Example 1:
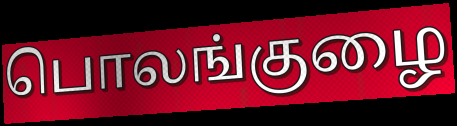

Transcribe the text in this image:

பொலங்குழை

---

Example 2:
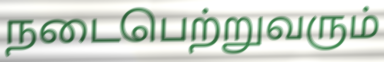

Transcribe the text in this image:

நடைபெற்றுவரும்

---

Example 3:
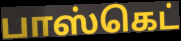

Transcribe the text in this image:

பாஸ்கெட்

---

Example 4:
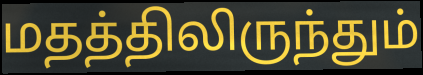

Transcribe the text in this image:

மதத்திலிருந்தும்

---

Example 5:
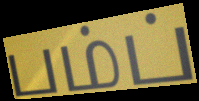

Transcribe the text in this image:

பம்ப்